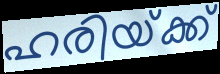
ഹരിയ്‌ക്ക്